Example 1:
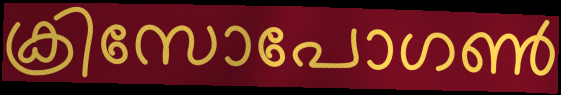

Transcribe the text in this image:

ക്രിസോപോഗൺ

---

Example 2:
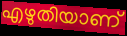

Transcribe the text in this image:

എഴുതിയാണ്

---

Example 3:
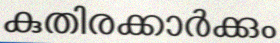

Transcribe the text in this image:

കുതിരക്കാർക്കും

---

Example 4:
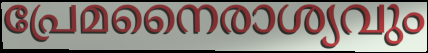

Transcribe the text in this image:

പ്രേമനൈരാശ്യവും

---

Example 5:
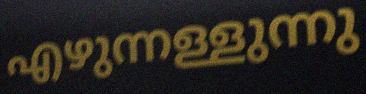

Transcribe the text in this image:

എഴുന്നള്ളുന്നു